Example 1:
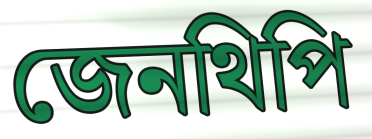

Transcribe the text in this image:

জেনথিপি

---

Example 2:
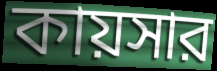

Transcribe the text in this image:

কায়সার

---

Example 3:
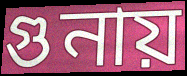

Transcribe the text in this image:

গুনায়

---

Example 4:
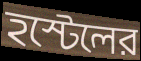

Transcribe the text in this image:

হস্টেলের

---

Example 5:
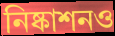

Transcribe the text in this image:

নিষ্কাশনও